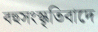
বহুসংস্কৃতিবাদে